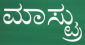
ಮಾಸ್ಟ್ರು